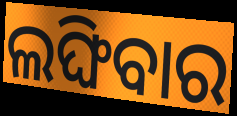
ଲଙ୍ଘିବାର